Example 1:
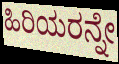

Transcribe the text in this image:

ಹಿರಿಯರನ್ನೇ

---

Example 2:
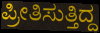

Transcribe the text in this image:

ಪ್ರೀತಿಸುತ್ತಿದ್ದ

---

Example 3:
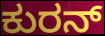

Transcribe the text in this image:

ಕುರನ್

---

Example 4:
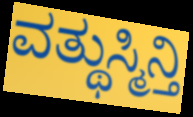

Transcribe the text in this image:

ವತ್ಥುಸ್ಮಿನ್ತಿ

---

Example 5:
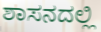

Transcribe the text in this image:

ಶಾಸನದಲ್ಲಿ